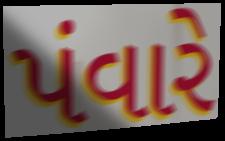
પંવારે